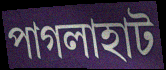
পাগলাহাট